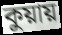
কুয়ায়